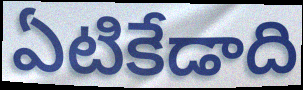
ఏటికేడాది